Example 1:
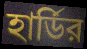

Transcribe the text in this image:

হার্ডির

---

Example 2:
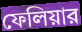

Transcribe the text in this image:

ফেলিয়ার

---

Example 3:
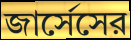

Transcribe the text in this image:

জার্সেসের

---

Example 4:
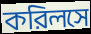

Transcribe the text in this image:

করিলসে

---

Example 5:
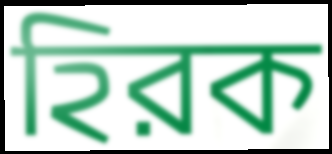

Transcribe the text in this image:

হিরক